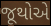
જૂથોએ